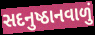
સદનુષ્ઠાનવાળું